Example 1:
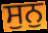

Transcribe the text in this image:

ਸੁਨੁ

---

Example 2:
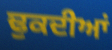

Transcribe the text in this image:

ਢੁਕਦੀਆਂ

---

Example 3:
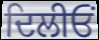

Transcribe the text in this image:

ਦਿਲੀਓਂ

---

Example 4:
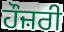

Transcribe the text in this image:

ਹੌਜ਼ਰੀ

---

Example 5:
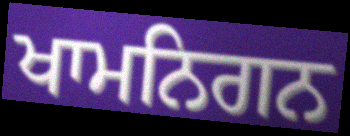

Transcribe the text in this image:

ਖਾਮਨਿਗਨ